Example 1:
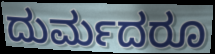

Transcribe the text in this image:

ದುರ್ಮದರೂ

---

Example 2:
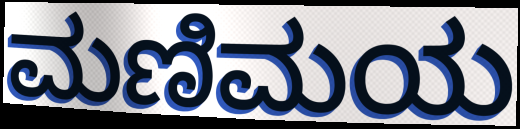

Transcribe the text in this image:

ಮಣಿಮಯ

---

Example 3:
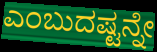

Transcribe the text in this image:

ಎಂಬುದಷ್ಟನ್ನೇ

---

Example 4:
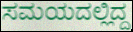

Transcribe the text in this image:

ಸಮಯದಲ್ಲಿದ್ದ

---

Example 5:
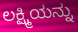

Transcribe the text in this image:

ಲಕ್ಷ್ಮಿಯನ್ನು